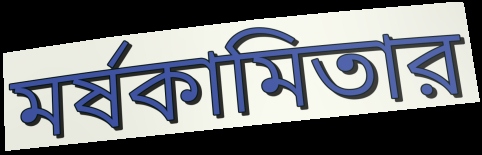
মর্ষকামিতার